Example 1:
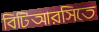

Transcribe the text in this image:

বিটিআরসিতে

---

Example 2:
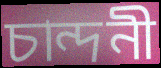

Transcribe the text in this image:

চান্দনী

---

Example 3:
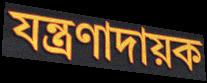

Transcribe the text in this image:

যন্ত্রণাদায়ক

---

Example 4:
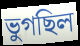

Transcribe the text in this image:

ভুগছিল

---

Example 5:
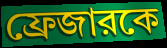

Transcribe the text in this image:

ফ্রেজারকে